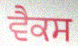
ਵੈਕਸ